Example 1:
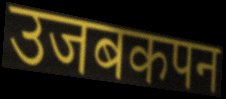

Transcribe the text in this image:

उजबकपन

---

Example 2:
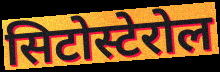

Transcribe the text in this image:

सिटोस्टेरोल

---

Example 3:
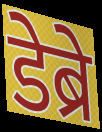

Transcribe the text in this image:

डेब्रे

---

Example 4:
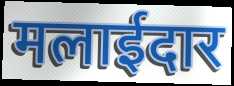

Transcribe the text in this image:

मलाईदार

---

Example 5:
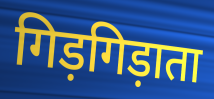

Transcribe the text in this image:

गिड़गिड़ाता